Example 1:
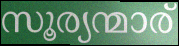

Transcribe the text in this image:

സൂര്യന്മാര്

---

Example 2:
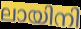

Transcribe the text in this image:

ലായിനി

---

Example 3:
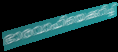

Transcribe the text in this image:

ഭാരവാഹിയെക്കുറിച്ച്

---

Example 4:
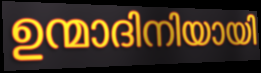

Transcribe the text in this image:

ഉന്മാദിനിയായി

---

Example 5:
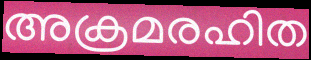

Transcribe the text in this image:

അക്രമരഹിത